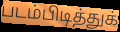
படம்பிடித்துக்